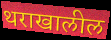
थराखालील